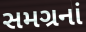
સમગ્રનાં